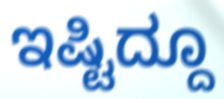
ಇಷ್ಟಿದ್ದೂ